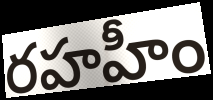
రహహీం